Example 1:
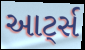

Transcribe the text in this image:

આટ્‌ર્સ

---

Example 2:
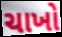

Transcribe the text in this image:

ચાખો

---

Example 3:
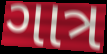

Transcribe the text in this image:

ગાત્ર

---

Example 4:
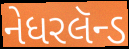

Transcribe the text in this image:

નેધરલૅન્ડ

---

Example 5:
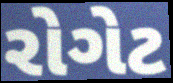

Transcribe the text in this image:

રોગેટ